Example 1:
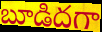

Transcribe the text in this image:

బూడిదగా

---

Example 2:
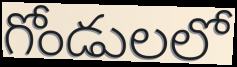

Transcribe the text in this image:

గోండులలో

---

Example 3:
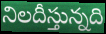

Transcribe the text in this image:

నిలదీస్తున్నది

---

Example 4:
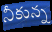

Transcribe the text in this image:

నీకున్న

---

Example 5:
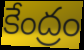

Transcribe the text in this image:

కేంద్రం